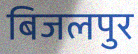
बिजलपुर